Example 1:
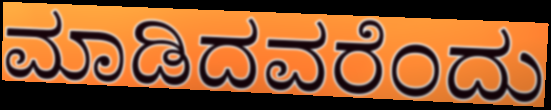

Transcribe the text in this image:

ಮಾಡಿದವರೆಂದು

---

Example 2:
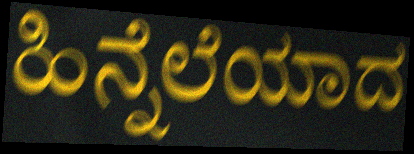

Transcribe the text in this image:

ಹಿನ್ನೆಲೆಯಾದ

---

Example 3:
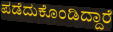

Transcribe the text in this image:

ಪಡೆದುಕೊಂಡಿದ್ದಾರೆ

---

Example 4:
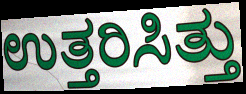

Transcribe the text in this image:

ಉತ್ತರಿಸಿತ್ತು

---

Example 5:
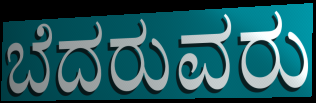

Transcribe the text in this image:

ಬೆದರುವರು